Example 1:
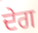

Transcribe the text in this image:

ਦੇਗ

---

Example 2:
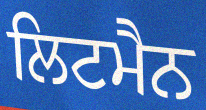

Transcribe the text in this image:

ਲਿਟਮੈਨ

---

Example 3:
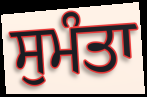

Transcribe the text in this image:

ਸੁਮੰਤਾ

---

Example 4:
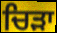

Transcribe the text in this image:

ਚਿੜਾ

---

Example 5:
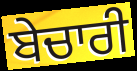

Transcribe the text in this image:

ਬੇਚਾਰੀ